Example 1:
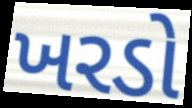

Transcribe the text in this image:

ખરડો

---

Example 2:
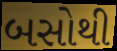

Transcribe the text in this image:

બસોથી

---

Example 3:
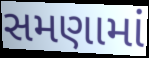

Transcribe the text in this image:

સમણામાં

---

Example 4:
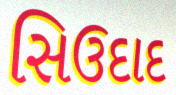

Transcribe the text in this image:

સિઉદાદ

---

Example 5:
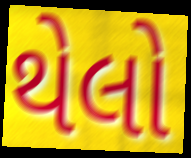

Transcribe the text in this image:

થેલો